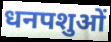
धनपशुओं